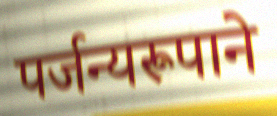
पर्जन्यरूपाने